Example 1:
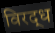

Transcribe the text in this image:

विरद्ध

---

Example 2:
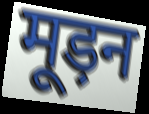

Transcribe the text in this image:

मूड़न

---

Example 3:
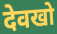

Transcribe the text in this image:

देवखो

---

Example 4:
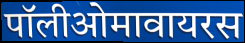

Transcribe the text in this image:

पॉलीओमावायरस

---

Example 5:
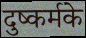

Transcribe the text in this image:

दुष्कर्मके